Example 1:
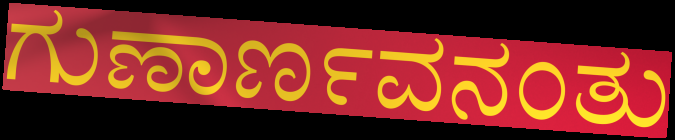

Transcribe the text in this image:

ಗುಣಾರ್ಣವನಂತು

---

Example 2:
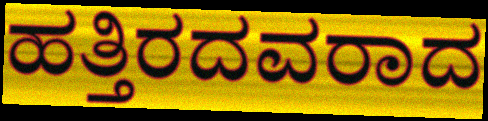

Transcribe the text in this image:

ಹತ್ತಿರದವರಾದ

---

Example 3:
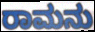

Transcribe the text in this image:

ರಾಮನು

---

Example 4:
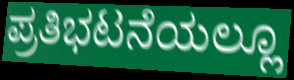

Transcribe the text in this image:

ಪ್ರತಿಭಟನೆಯಲ್ಲೂ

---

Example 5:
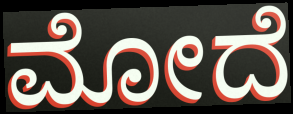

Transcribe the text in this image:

ಮೋದೆ